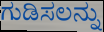
ಗುಡಿಸಲನ್ನು